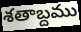
శతాబ్దము